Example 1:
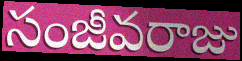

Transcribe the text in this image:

సంజీవరాజు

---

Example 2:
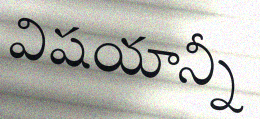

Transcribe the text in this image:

విషయాన్నీ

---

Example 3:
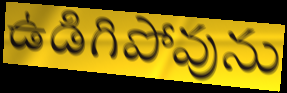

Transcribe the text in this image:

ఉడిగిపోవును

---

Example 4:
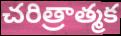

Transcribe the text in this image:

చరిత్రాత్మక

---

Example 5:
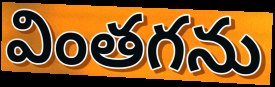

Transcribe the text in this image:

వింతగను